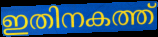
ഇതിനകത്ത്